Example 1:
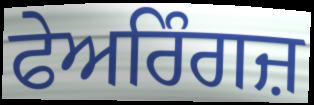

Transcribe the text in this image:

ਫੇਅਰਿੰਗਜ਼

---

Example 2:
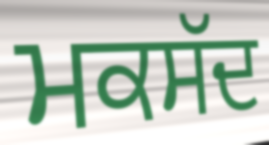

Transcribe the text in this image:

ਮਕਸੱਦ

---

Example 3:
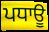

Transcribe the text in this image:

ਪਧਾਊ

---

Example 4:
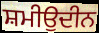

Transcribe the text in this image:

ਸ਼ਮੀਉਦੀਨ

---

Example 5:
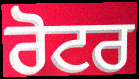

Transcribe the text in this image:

ਰੋਟਰ